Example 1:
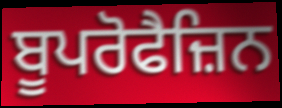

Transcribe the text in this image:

ਬੂਪਰੋਫੈਜ਼ਿਨ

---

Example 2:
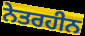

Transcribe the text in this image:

ਨੇਤਰਹੀਨ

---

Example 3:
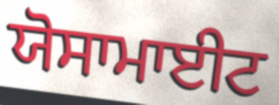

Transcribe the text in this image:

ਯੋਸਾਮਾਈਟ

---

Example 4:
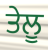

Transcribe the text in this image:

ਤੇਲੂ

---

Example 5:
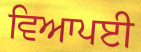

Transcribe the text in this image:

ਵਿਆਪਈ